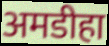
अमडीहा